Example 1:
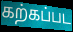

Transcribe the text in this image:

கற்கப்பட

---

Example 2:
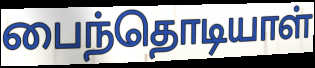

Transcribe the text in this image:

பைந்தொடியாள்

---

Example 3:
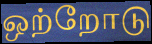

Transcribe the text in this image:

ஒற்றோடு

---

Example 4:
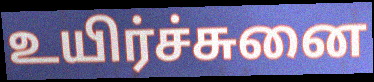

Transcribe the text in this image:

உயிர்ச்சுனை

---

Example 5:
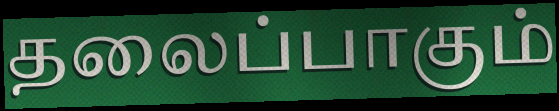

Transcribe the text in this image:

தலைப்பாகும்